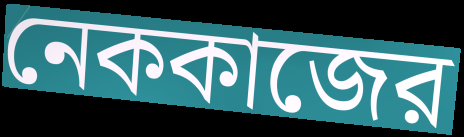
নেককাজের